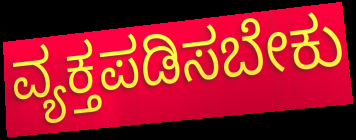
ವ್ಯಕ್ತಪಡಿಸಬೇಕು